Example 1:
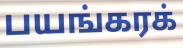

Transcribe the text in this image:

பயங்கரக்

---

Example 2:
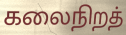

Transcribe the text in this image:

கலைநிறத்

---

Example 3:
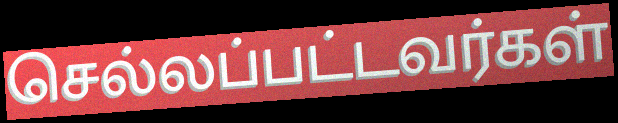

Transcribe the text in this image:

செல்லப்பட்டவர்கள்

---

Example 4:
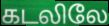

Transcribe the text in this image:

கடலிலே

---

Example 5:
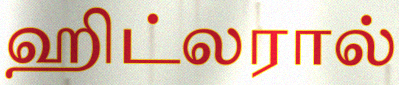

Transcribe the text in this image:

ஹிட்லரால்